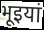
भूइयां